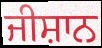
ਜੀਸ਼ਾਨ